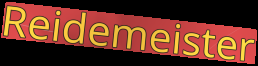
Reidemeister